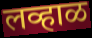
लव्हाळ